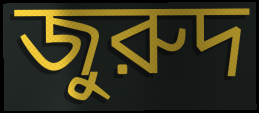
জুরুদ